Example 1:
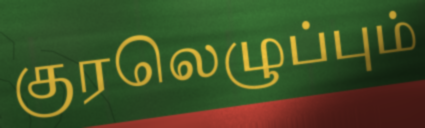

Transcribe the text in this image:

குரலெழுப்பும்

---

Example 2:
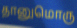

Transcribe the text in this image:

தானுமொரு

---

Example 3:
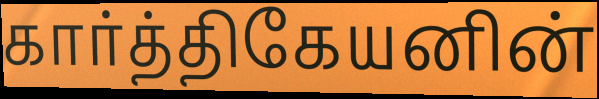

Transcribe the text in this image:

கார்த்திகேயனின்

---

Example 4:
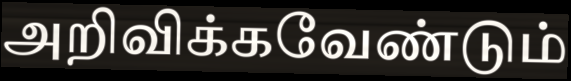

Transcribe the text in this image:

அறிவிக்கவேண்டும்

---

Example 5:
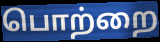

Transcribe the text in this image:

பொற்றை